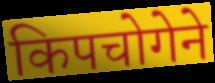
किपचोगेने